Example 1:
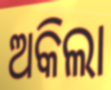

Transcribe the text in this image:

ଅକିଲା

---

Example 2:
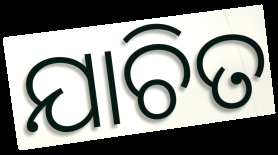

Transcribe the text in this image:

ଯାଚିତ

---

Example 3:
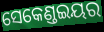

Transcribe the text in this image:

ସେକେଣ୍ଡଇୟର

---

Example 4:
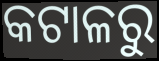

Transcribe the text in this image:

କଟାଳରୁ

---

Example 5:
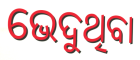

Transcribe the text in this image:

ଭେଦୁଥିବା